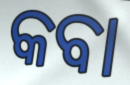
କବା